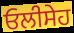
ਓਲੀਸੇਹ